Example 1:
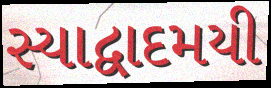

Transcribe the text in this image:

સ્યાદ્વાદમયી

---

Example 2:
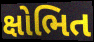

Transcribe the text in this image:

ક્ષોભિત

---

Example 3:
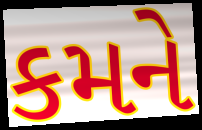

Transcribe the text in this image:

કમને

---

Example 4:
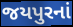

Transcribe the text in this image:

જયપુરનાં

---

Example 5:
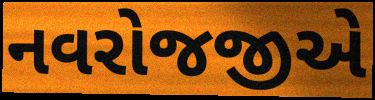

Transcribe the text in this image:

નવરોજજીએ